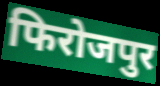
फिरोजपुर